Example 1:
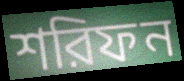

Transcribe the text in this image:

শরিফন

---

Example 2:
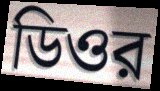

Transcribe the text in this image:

ডিওর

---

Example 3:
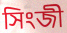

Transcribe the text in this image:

সিংজী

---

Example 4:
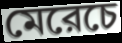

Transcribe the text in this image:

মেরেচে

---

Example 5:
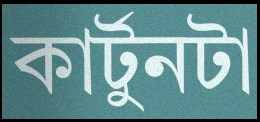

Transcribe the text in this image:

কার্টুনটা